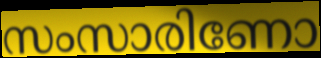
സംസാരിണോ